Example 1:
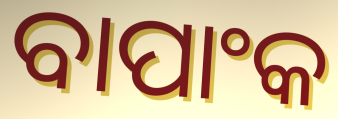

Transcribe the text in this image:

ବାପାଂକ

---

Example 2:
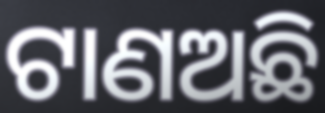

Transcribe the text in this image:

ଟାଣଅଛି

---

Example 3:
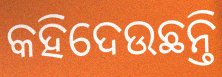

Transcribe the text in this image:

କହିଦେଉଛନ୍ତି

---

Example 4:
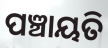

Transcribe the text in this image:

ପଞ୍ଚାୟତି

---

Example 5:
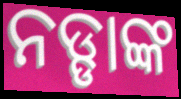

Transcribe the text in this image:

ନଡ୍ଡାଙ୍କ